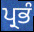
ਪ੍ਰਭੰ